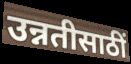
उन्नतीसाठीं